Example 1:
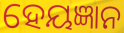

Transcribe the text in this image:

ହେୟଜ୍ଞାନ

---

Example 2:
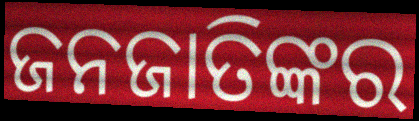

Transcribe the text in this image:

ଜନଜାତିଙ୍କର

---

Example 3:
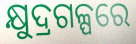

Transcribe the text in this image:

କ୍ଷୁଦ୍ରଗଳ୍ପରେ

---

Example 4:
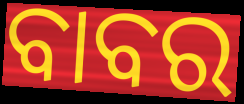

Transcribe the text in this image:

ବାବର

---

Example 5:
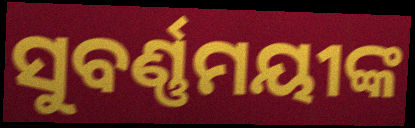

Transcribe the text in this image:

ସୁବର୍ଣ୍ଣମୟୀଙ୍କ